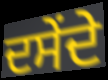
ਦਸੇਂਦੇ